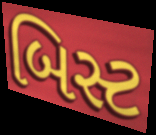
બિસ્ટ